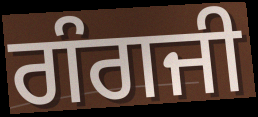
ਗੰਗਜੀ